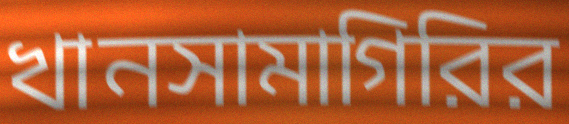
খানসামাগিরির